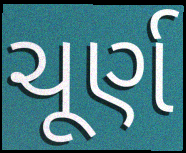
ચૂર્ણ